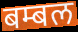
बम्बल